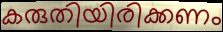
കരുതിയിരിക്കണം